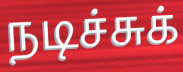
நடிச்சுக்